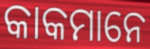
କାକମାନେ